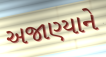
અજાણ્યાને